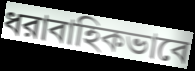
ধরাবাহিকভাবে